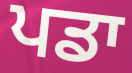
ਪਡਾ